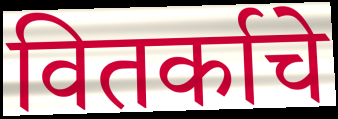
वितर्काचे